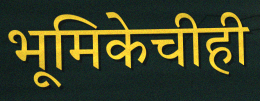
भूमिकेचीही